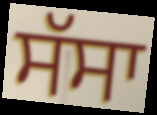
ਸੱਸਾ